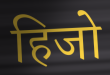
हिजो